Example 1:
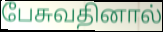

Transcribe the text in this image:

பேசுவதினால்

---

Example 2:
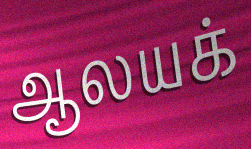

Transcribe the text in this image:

ஆலயக்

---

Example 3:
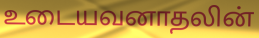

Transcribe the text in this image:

உடையவனாதலின்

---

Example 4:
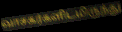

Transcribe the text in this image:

வாசகர்களிடமிருந்து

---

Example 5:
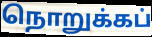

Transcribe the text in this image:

நொறுக்கப்